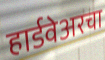
हार्डवेअरचा